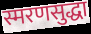
स्मरणसुद्धा